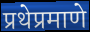
प्रथेप्रमाणे